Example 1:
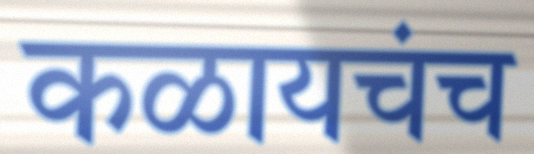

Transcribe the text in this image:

कळायचंच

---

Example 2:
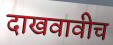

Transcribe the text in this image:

दाखवावीच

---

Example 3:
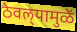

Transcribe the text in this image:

ठेवल्यामुळें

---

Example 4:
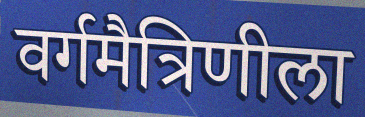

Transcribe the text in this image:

वर्गमैत्रिणीला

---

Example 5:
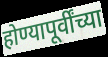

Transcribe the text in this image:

होण्यापूर्वींच्या